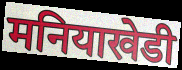
मनियाखेडी